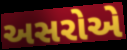
અસરોએ